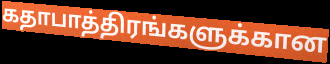
கதாபாத்திரங்களுக்கான